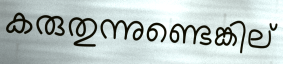
കരുതുന്നുണ്ടെങ്കില്